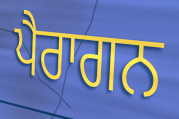
ਪੈਰਾਗਨ